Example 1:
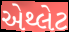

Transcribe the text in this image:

એથ્લેટ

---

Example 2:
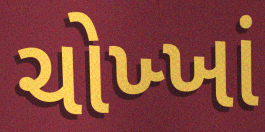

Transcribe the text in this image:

ચોખ્ખાં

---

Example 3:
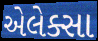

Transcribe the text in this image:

એલેક્સા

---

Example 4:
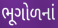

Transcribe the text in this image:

ભૂગોળનાં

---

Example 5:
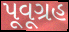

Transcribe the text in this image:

પૂવૂગ્રહ